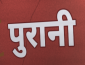
पुरानी